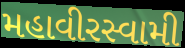
મહાવીરસ્વામી